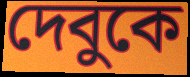
দেবুকে